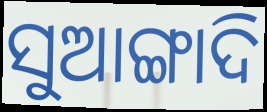
ସୁଆଙ୍ଗାଦି